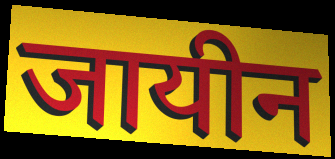
जायीन